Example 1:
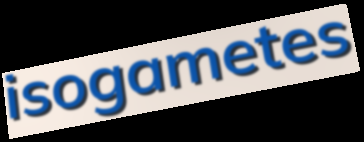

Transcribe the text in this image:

isogametes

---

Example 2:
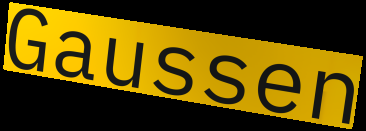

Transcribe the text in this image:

Gaussen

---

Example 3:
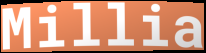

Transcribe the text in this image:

Millia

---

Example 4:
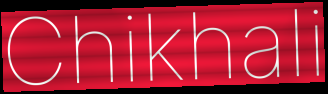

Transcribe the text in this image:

Chikhali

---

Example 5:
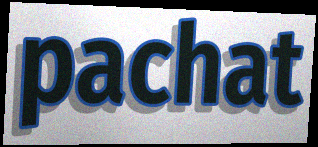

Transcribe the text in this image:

pachat